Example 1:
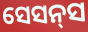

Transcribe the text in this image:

ସେସନ୍‌ସ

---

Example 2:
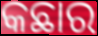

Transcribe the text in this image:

କଛାର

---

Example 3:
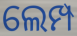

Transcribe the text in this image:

ଲେମ୍ପ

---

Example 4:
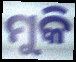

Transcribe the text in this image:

ମୁକି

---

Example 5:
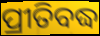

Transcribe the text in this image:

ପ୍ରୀତିବଦ୍ଧ